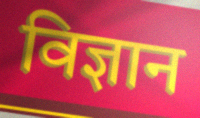
विज्ञान